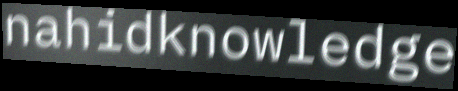
nahidknowledge